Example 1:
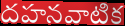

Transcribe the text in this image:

దహనవాటిక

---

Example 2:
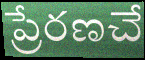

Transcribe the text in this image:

ప్రేరణచే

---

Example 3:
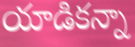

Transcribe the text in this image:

యాడికన్నా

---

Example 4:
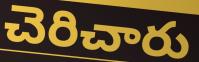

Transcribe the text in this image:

చెరిచారు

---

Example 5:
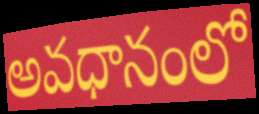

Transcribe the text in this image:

అవధానంలో